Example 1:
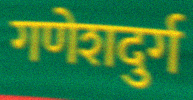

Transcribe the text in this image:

गणेशदुर्ग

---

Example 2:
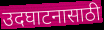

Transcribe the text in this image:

उदघाटनासाठी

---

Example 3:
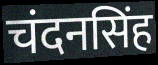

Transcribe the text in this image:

चंदनसिंह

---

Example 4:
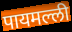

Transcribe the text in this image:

पायमल्ली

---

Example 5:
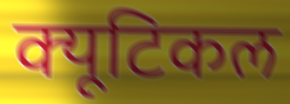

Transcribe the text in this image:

क्यूटिकल